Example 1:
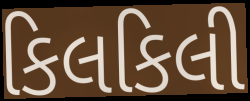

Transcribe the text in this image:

કિલકિલી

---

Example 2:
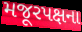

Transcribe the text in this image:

મજૂરપક્ષના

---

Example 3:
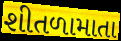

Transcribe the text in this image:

શીતળામાતા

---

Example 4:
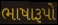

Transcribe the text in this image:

ભાષારૂપો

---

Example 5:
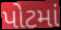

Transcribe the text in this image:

પોટમાં